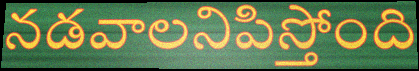
నడవాలనిపిస్తోంది